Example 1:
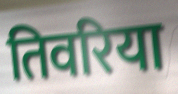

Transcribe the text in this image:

तिवरिया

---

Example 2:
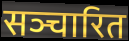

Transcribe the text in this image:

सञ्चारित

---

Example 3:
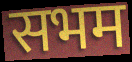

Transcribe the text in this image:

सभम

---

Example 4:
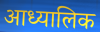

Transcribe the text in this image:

आध्यालिक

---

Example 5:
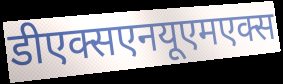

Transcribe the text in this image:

डीएक्सएनयूएमएक्स